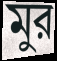
মুর